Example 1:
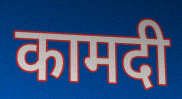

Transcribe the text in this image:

कामदी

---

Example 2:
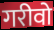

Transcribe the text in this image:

गरीवो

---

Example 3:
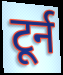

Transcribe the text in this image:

टूर्न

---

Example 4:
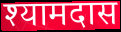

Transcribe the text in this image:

श्यामदास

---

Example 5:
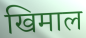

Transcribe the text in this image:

खिमाल